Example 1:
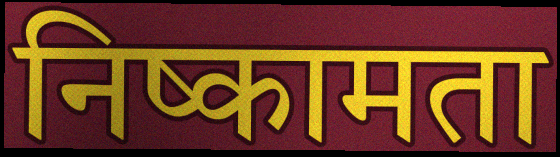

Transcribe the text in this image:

निष्कामता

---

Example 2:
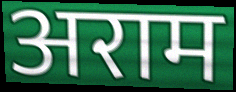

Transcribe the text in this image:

अराम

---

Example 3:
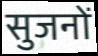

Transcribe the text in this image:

सुजनों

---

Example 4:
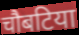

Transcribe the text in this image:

चौबटिया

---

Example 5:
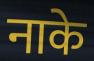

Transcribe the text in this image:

नाके